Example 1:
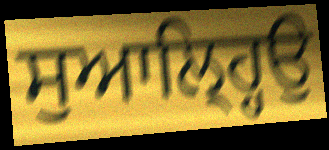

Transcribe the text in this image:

ਸੁਆਲ੍ਹ੍ਹਿਉ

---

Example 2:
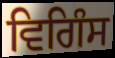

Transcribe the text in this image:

ਵਿਗਿੰਸ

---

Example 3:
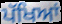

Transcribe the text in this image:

ਪੱਖਿਆਂ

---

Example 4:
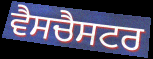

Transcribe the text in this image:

ਵੈਸਚੈਸਟਰ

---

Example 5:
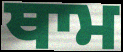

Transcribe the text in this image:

ਥਾਮ